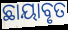
ଛାୟାବୃତ